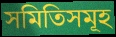
সমিতিসমূহ